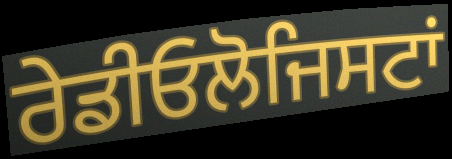
ਰੇਡੀਓਲੋਜਿਸਟਾਂ